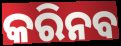
କରିନବ